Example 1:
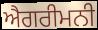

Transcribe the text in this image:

ਐਗਰੀਮਨੀ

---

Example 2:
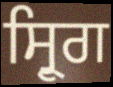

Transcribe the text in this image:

ਸ੍ਟ੍ਰਿਗ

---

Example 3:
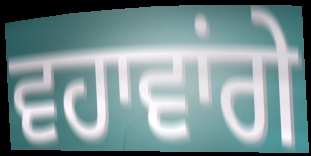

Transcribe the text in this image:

ਵਹਾਵਾਂਗੇ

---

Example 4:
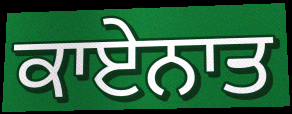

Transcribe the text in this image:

ਕਾਏਨਾਤ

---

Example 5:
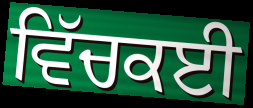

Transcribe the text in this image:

ਵਿੱਚਕਈ